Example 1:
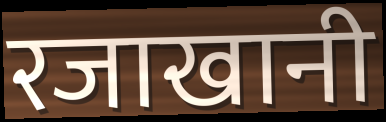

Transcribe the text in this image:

रजाखानी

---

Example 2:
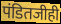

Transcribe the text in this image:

पंडितजीही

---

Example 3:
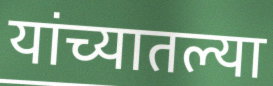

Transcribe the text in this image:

यांच्यातल्या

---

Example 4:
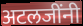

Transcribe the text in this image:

अटलजींनी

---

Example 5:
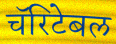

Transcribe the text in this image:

चॅरिटेबल